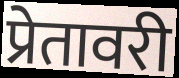
प्रेतावरी